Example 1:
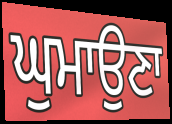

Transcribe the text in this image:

ਘੁਮਾਉਣਾ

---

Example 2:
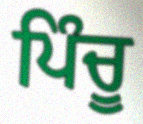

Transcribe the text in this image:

ਪਿੰਚੂ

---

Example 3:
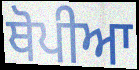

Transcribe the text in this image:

ਥੋਪੀਆ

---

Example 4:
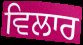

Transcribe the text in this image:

ਵਿਲਾਰ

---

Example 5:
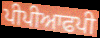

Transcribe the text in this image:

ਪੀਪੀਆਫਪੀ